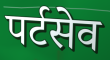
पर्टसेव